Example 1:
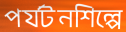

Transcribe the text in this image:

পর্যটনশিল্পে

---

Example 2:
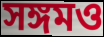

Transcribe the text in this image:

সঙ্গমও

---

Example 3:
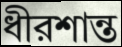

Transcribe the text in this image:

ধীরশান্ত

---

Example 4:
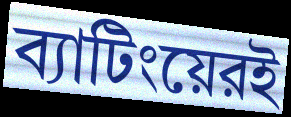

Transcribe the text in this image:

ব্যাটিংয়েরই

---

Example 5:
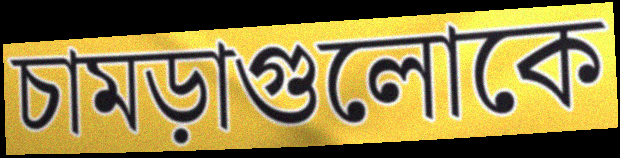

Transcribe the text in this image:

চামড়াগুলোকে